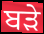
ਬਡ਼ੇ